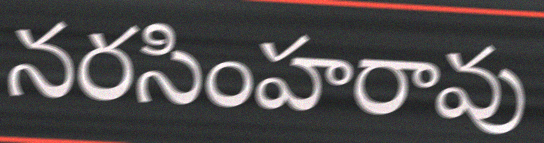
నరసింహరావు